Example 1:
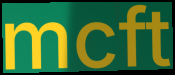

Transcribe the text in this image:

mcft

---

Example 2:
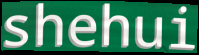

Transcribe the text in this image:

shehui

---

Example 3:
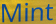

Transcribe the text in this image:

Mint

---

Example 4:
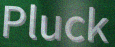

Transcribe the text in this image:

Pluck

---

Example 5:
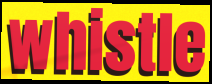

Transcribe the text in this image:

whistle